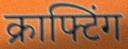
क्राफ्टिंग